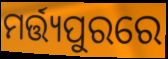
ମର୍ତ୍ତ୍ୟପୁରରେ